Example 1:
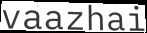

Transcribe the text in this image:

vaazhai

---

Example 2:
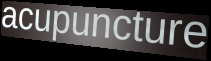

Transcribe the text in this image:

acupuncture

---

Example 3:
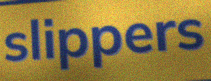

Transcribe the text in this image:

slippers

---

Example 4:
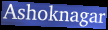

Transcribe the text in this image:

Ashoknagar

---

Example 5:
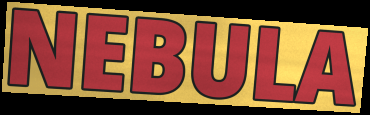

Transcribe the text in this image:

NEBULA